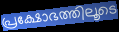
പ്രക്ഷോഭത്തിലൂടെ